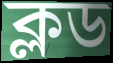
ক্লড